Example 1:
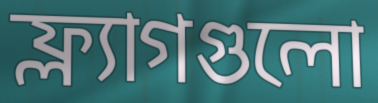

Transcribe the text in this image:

ফ্ল্যাগগুলো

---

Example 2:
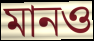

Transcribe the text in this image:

মানও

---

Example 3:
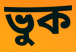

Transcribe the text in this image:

ভুক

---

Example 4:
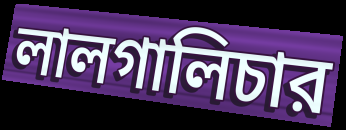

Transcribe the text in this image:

লালগালিচার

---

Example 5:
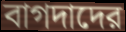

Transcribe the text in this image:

বাগদাদের